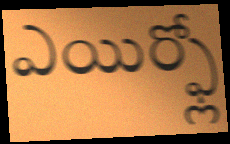
ఎయిర్ఫ్లో